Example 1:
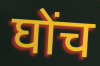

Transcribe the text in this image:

घोंच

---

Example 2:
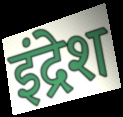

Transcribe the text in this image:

इंद्रेश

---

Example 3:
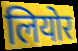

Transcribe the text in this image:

लियोर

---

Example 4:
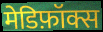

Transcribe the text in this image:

मेडिफ़ॉक्स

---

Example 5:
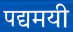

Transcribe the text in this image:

पद्यमयी